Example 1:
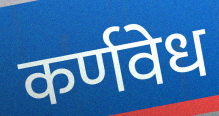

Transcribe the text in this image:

कर्णवेध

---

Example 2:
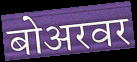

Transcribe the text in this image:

बोअरवर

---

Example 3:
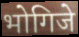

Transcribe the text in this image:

भोगिजे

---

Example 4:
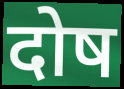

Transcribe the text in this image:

दोष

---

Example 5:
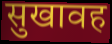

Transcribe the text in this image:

सुखावह